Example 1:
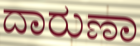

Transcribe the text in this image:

ದಾರುಣಾ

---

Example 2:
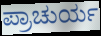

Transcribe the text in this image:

ಪ್ರಾಚುರ್ಯ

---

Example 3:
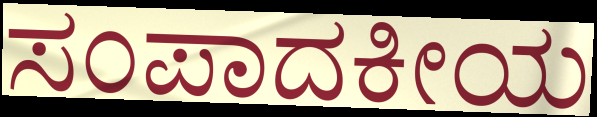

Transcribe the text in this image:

ಸಂಪಾದಕೀಯ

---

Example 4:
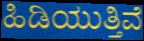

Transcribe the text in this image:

ಹಿಡಿಯುತ್ತಿವೆ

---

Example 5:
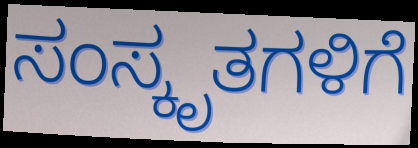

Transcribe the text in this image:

ಸಂಸ್ಕೃತಗಳಿಗೆ